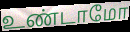
உண்டாமோ